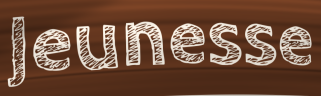
Jeunesse